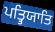
ਪਤ੍ਤਿਯਾਤਿ